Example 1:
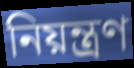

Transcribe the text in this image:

নিয়ন্ত্ৰণ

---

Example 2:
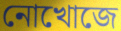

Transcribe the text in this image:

নোখোজে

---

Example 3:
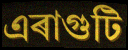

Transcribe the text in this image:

এৰাগুটি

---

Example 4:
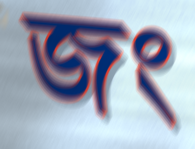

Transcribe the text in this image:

জং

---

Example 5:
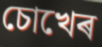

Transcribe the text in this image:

চোখেৰ